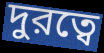
দুরত্বে